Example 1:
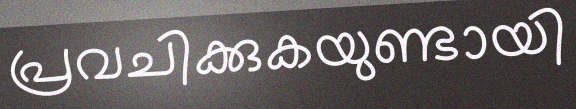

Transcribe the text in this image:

പ്രവചിക്കുകയുണ്ടായി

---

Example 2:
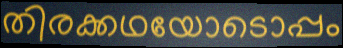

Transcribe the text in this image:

തിരക്കഥയോടൊപ്പം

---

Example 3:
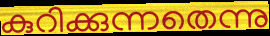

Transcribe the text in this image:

കുറിക്കുന്നതെന്നു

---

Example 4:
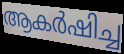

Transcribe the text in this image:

ആകർഷിച്ച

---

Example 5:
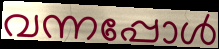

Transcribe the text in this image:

വന്നപ്പോൾ